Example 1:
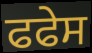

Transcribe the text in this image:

ਫਫੇਸ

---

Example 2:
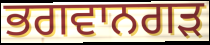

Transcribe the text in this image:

ਭਗਵਾਨਗੜ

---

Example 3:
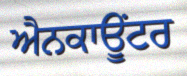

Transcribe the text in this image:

ਐਨਕਾਊਂਟਰ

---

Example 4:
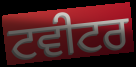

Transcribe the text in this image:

ਟਵੀਟਰ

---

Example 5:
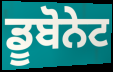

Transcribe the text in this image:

ਡੂਬੋਨੇਟ